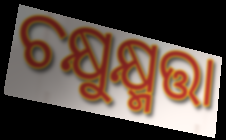
ଚକ୍ଷୁକ୍ଷ୍ମତ୍ତା